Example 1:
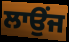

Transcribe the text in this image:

ਲਾਉਂਜ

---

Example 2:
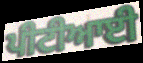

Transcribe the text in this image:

ਪੀਟੀਆਈ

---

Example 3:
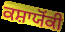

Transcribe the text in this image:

ਕਸ਼ਾਯੋਂਕੀ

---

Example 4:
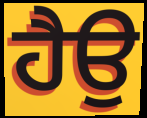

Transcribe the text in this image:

ਹੈਉ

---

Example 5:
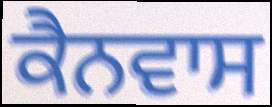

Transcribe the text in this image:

ਕੈਨਵਾਸ